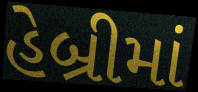
હેબ્રીમાં